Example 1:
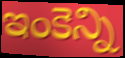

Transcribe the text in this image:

ఇంకెన్ని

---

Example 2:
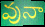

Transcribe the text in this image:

వునా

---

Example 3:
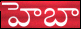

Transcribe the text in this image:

హెబా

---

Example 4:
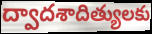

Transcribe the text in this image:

ద్వాదశాదిత్యులకు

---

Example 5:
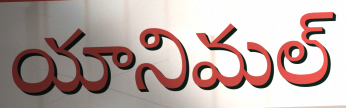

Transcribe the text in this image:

యానిమల్